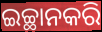
ଇଚ୍ଛାନକରି